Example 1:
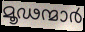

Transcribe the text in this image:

മൂഢന്മാർ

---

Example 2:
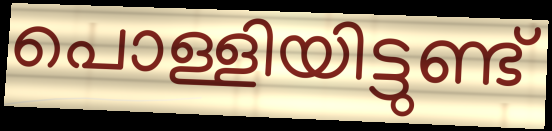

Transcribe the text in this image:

പൊള്ളിയിട്ടുണ്ട്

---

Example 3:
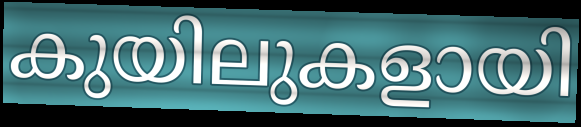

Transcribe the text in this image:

കുയിലുകളായി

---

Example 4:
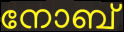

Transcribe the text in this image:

നോബ്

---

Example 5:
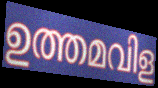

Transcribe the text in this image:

ഉത്തമവിള